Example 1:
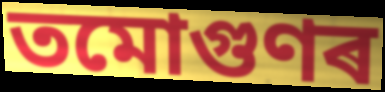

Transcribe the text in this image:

তমোগুণৰ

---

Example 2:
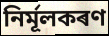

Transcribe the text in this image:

নিৰ্মূলকৰণ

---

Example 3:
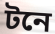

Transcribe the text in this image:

টনে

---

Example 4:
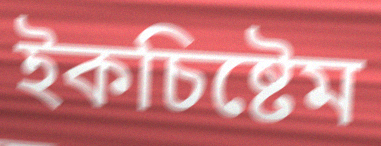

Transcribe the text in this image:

ইকচিষ্টেম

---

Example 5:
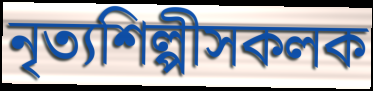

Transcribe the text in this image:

নৃত্যশিল্পীসকলক